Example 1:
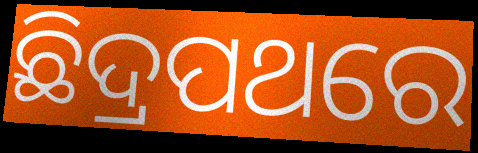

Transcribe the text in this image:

ଛିଦ୍ରପଥରେ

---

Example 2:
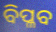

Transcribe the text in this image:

ବିପ୍ଳବ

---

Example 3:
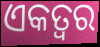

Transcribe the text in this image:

ଏକତ୍ବର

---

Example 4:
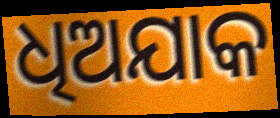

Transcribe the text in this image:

ଧିଅଯାକ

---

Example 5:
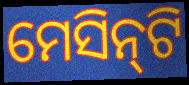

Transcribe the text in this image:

ମେସିନ୍‌ଟି